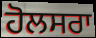
ਹੋਲਸਰਾ